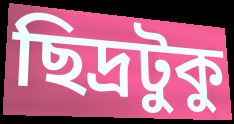
ছিদ্রটুকু